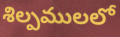
శిల్పములలో